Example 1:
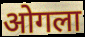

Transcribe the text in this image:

ओगला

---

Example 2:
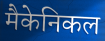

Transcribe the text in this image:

मैकेनिकल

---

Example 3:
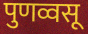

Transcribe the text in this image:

पुणव्वसू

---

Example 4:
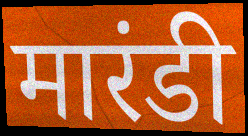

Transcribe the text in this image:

मारंडी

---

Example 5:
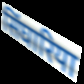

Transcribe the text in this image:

सिंघारिया